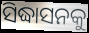
ସିଦ୍ଧାସନକୁ